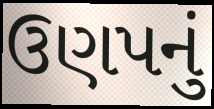
ઉણપનું